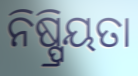
ନିଷ୍ପ୍ରିୟତା